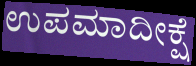
ಉಪಮಾದೀಕ್ಷೆ